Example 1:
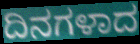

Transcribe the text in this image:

ದಿನಗಳಾದ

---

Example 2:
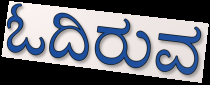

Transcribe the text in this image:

ಓದಿರುವ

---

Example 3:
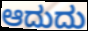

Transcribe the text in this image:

ಆದುದು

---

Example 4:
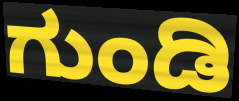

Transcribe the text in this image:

ಗುಂಡಿ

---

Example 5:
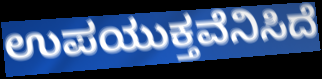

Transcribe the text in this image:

ಉಪಯುಕ್ತವೆನಿಸಿದೆ